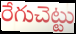
రేగుచెట్టు